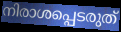
നിരാശപ്പെടരുത്